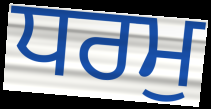
ਧਰਮੁ